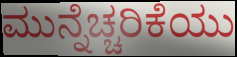
ಮುನ್ನೆಚ್ಚರಿಕೆಯು